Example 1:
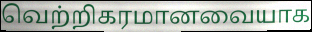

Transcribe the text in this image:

வெற்றிகரமானவையாக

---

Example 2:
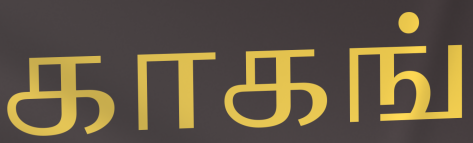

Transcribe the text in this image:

காகங்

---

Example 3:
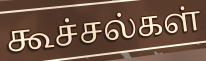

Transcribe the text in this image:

கூச்சல்கள்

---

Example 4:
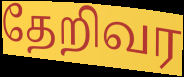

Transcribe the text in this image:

தேறிவர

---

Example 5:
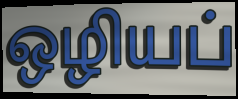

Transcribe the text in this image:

ஒழியப்